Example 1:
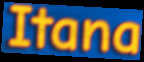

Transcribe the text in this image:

Itana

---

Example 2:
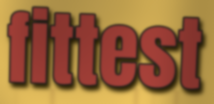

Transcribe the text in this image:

fittest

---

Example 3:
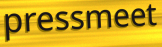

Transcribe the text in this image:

pressmeet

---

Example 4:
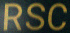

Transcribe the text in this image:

RSC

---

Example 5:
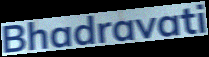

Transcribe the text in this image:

Bhadravati